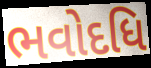
ભવોદધિ